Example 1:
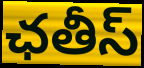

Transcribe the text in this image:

ఛతీస్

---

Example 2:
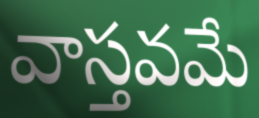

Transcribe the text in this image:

వాస్తవమే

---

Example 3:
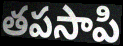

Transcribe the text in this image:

తపసాపి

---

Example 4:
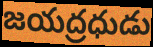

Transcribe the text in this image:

జయద్రధుడు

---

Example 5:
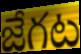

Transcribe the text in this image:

జేగట